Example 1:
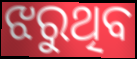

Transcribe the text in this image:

ଝରୁଥିବ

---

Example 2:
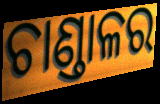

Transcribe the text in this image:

ଚାଣ୍ଡାଳର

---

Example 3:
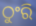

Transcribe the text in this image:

ଠୁଂରି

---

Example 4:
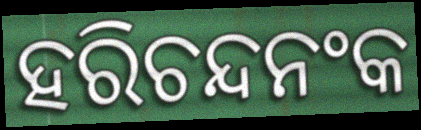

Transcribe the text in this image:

ହରିଚନ୍ଦନଂକ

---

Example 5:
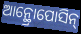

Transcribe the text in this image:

ଆନ୍ଥ୍ରୋପୋସିନ୍